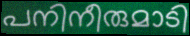
പനിനീരുമാടി